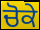
ਚੋਕੇ